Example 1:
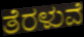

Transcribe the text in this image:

ತೆರಳುವೆ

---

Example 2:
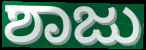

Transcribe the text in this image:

ಶಾಜು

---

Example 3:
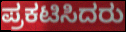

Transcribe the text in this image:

ಪ್ರಕಟಿಸಿದರು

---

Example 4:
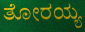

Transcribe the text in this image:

ತೋರಯ್ಯ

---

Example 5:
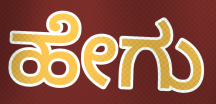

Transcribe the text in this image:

ಹೇಗು